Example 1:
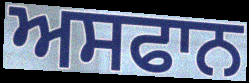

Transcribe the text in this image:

ਅਸਫਾਨ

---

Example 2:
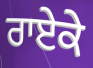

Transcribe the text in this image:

ਰਾਏਕੇ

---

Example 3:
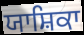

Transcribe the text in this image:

ਯਾਸ਼ਿਕਾ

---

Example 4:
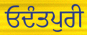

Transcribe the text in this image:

ਓਦੰਤਪੁਰੀ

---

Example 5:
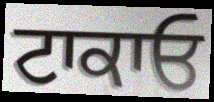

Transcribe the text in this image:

ਟਾਕਾਓ